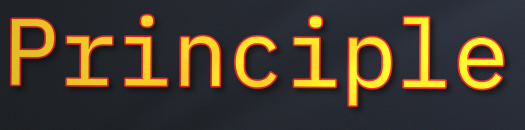
Principle